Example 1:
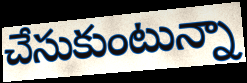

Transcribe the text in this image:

చేసుకుంటున్నా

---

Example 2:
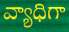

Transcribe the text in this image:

వ్యాధిగా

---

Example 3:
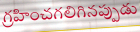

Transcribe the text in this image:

గ్రహించగలిగినప్పుడు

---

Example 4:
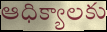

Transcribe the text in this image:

ఆధిక్యాలకు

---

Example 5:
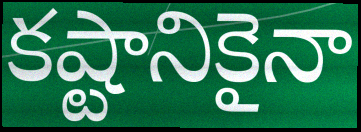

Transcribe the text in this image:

కష్టానికైనా